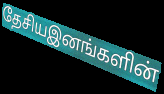
தேசியஇனங்களின்